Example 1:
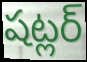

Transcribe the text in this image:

షట్లర్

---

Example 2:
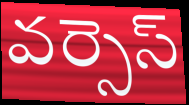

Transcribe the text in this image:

వర్సెస్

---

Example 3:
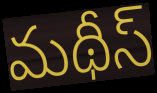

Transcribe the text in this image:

మథీస్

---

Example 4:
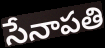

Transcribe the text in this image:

సేనాపతి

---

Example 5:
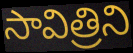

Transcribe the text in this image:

సావిత్రిని